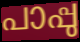
പാപ്പു